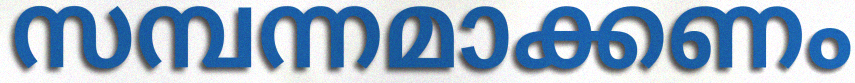
സമ്പന്നമാക്കണം